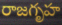
రాజగృహ